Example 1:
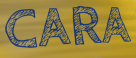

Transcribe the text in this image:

CARA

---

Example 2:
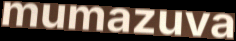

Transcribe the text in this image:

mumazuva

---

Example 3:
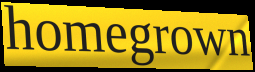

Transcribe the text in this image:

homegrown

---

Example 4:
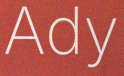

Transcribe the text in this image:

Ady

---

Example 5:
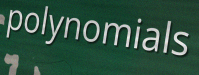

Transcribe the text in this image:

polynomials